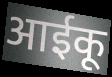
आईकू